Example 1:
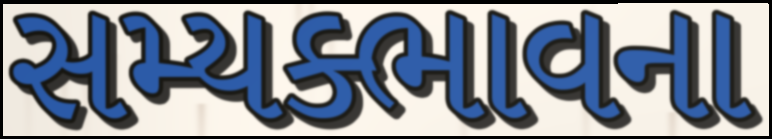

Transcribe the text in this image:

સમ્યક્ભાવના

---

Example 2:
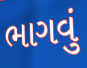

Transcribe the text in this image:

ભાગવું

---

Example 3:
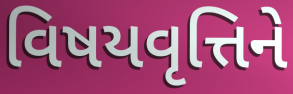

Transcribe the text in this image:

વિષયવૃત્તિને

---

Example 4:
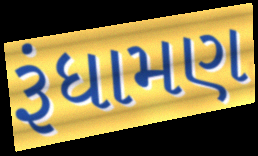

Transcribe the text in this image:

રૂંધામણ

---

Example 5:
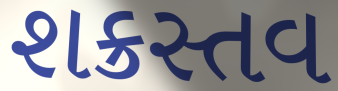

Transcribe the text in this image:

શક્રસ્તવ